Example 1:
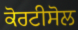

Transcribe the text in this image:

ਕੋਰਟੀਸੋਲ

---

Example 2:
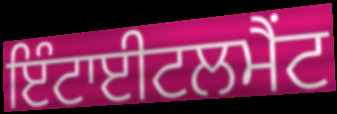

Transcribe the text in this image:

ਇੰਟਾਈਟਲਮੈਂਟ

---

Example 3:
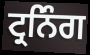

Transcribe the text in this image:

ਟ੍ਰਨਿੰਗ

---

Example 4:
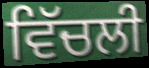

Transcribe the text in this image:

ਵਿੱਚਲੀ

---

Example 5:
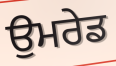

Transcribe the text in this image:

ਉਮਰੇਡ